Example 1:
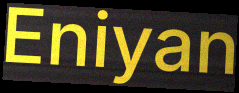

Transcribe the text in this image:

Eniyan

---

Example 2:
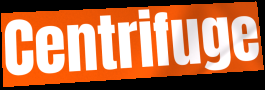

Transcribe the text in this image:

Centrifuge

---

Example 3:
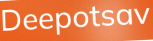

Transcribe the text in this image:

Deepotsav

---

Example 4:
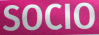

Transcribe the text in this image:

SOCIO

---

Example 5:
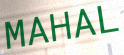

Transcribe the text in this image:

MAHAL